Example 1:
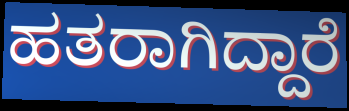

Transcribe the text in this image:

ಹತರಾಗಿದ್ದಾರೆ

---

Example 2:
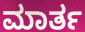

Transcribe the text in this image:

ಮಾರ್ತ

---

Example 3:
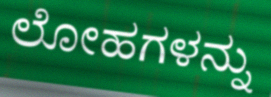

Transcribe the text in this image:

ಲೋಹಗಳನ್ನು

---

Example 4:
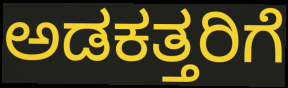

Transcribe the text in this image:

ಅಡಕತ್ತರಿಗೆ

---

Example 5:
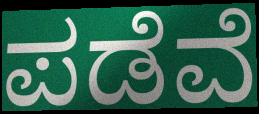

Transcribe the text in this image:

ಪಡೆವೆ